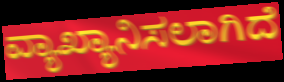
ವ್ಯಾಖ್ಯಾನಿಸಲಾಗಿದೆ